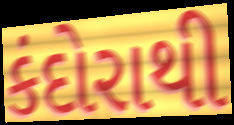
કંદોરાથી